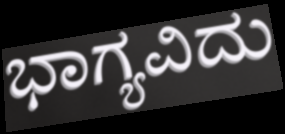
ಭಾಗ್ಯವಿದು